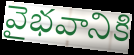
వైభవానికి